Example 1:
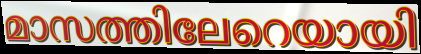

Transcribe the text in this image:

മാസത്തിലേറെയായി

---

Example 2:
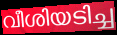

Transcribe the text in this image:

വീശിയടിച്ച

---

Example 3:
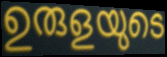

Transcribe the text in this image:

ഉരുളയുടെ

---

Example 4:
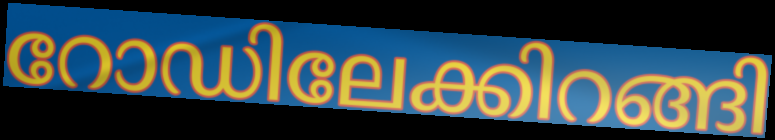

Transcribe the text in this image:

റോഡിലേക്കിറങ്ങി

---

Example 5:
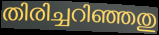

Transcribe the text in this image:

തിരിച്ചറിഞ്ഞതു